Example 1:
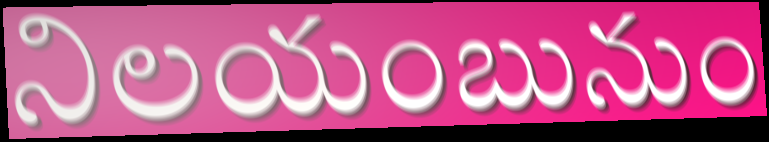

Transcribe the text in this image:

నిలయంబునుం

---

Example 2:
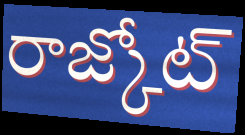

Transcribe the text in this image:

రాజ్కోట్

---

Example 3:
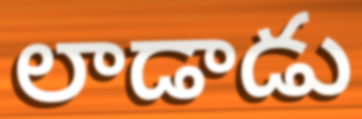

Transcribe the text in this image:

లాడాడు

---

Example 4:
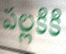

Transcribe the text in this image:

పల్లకికి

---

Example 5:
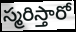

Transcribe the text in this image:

స్మరిస్తారో